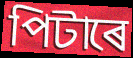
পিটাৰে